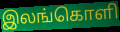
இலங்கொளி